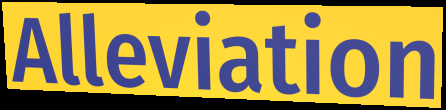
Alleviation